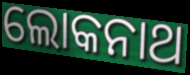
ଲୋକନାଥ